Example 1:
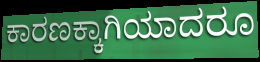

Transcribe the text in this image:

ಕಾರಣಕ್ಕಾಗಿಯಾದರೂ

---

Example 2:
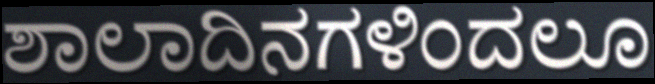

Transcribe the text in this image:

ಶಾಲಾದಿನಗಳಿಂದಲೂ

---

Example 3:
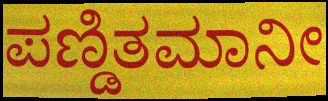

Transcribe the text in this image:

ಪಣ್ಡಿತಮಾನೀ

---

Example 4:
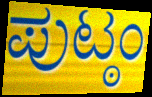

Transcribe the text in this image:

ಪುಟ್ಠಂ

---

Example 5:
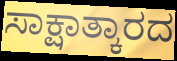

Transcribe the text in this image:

ಸಾಕ್ಷಾತ್ಕಾರದ